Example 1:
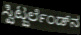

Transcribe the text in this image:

ಸ್ವಿಟ್ಜರ್ಲೆಂಡ್‌ನ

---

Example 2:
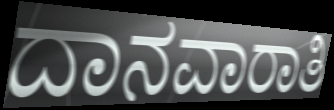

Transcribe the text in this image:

ದಾನವಾರಾತಿ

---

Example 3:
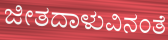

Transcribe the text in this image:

ಜೀತದಾಳುವಿನಂತೆ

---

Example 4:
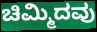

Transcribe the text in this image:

ಚಿಮ್ಮಿದವು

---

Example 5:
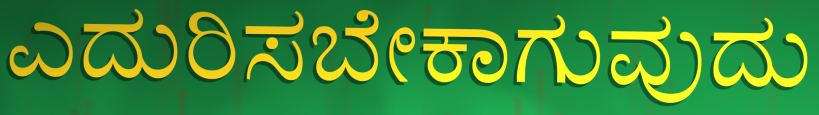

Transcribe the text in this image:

ಎದುರಿಸಬೇಕಾಗುವುದು